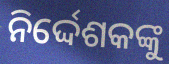
ନିର୍ଦ୍ଦେଶକଙ୍କୁ